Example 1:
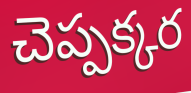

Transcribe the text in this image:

చెప్పక్కర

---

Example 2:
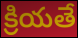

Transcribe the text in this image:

క్రియతే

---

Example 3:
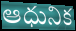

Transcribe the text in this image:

ఆధునిక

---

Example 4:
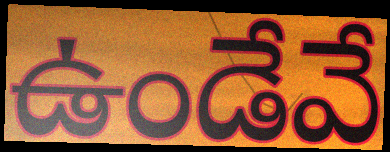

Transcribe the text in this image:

ఉండేవే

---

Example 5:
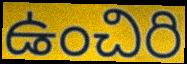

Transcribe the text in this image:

ఉంచిరి